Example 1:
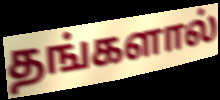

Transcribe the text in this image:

தங்களால்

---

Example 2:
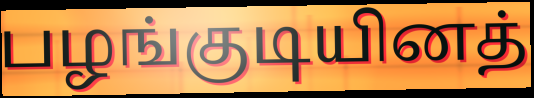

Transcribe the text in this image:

பழங்குடியினத்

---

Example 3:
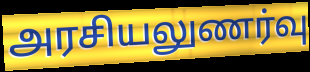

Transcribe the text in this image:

அரசியலுணர்வு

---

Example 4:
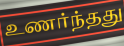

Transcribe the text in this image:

உணர்ந்தது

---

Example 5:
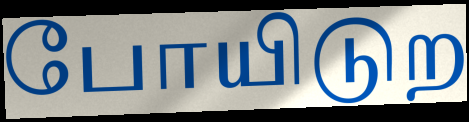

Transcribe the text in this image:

போயிடுற